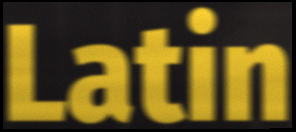
Latin